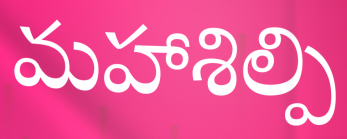
మహాశిల్పి